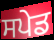
ਸਪੇਡ